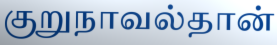
குறுநாவல்தான்